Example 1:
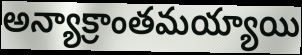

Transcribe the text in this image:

అన్యాక్రాంతమయ్యాయి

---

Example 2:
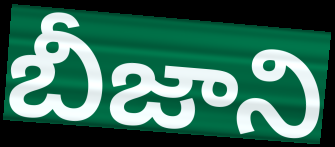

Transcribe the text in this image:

బీజాని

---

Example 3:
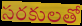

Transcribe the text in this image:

సరకులతో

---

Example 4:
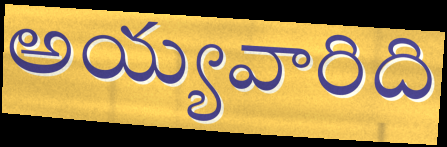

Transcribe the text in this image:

అయ్యవారిది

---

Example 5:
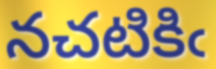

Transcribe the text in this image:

నచటికిఁ